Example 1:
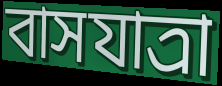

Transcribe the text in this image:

বাসযাত্রা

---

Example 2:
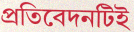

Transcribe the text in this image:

প্রতিবেদনটিই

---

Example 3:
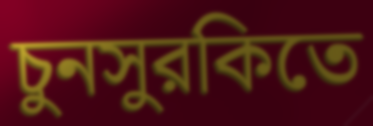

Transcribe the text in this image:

চুনসুরকিতে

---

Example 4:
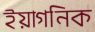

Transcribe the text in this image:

ইয়াগনিক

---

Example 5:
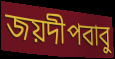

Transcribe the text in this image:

জয়দীপবাবু